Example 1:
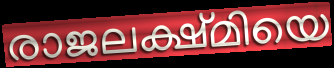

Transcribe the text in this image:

രാജലക്ഷ്മിയെ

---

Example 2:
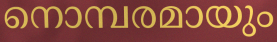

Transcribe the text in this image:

നൊമ്പരമായും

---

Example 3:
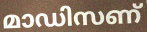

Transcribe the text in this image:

മാഡിസണ്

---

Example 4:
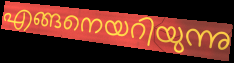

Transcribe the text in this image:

എങ്ങനെയറിയുന്നു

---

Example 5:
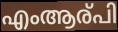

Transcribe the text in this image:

എംആര്പി